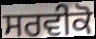
ਸਰਵੀਕੋ